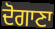
ਦੋਗਾਣਾ